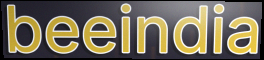
beeindia